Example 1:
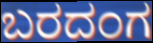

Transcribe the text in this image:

ಬರದಂಗ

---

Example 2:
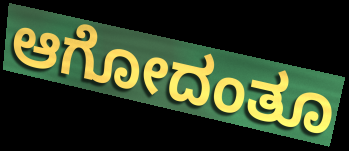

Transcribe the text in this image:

ಆಗೋದಂತೂ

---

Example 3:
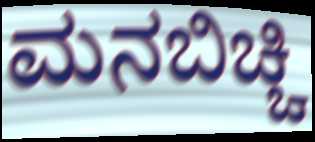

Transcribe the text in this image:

ಮನಬಿಚ್ಚಿ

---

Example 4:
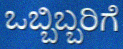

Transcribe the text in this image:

ಒಬ್ಬಿಬ್ಬರಿಗೆ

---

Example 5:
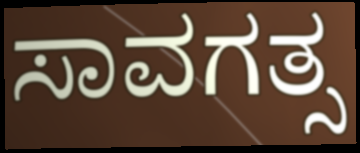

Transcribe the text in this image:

ಸಾವಗತ್ಸ